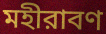
মহীরাবণ